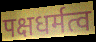
पक्षधर्मत्व